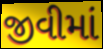
જીવીમાં